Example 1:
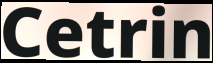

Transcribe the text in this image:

Cetrin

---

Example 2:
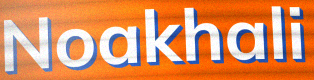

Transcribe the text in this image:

Noakhali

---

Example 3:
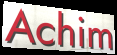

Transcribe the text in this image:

Achim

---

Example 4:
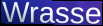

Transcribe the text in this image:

Wrasse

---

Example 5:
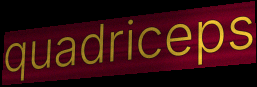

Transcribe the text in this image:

quadriceps